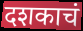
दशकाचं